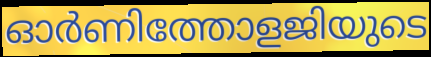
ഓർണിത്തോളജിയുടെ